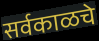
सर्वकाळचे